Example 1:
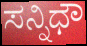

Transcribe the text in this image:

ಸನ್ನಿಧೌ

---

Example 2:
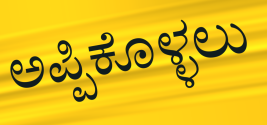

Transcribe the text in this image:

ಅಪ್ಪಿಕೊಳ್ಳಲು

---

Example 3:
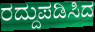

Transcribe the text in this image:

ರದ್ದುಪಡಿಸಿದ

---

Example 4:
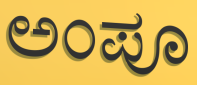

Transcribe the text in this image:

ಅಂಪೂ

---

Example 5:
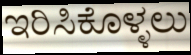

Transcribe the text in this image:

ಇರಿಸಿಕೊಳ್ಳಲು